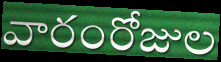
వారంరోజుల